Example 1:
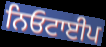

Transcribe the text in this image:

ਨਿਓਟਾਈਪ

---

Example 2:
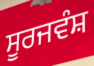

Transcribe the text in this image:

ਸੂਰਜਵੰਸ਼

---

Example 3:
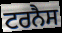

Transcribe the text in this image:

ਟਰਨੈਸ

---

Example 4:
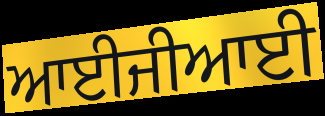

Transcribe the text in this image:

ਆਈਜੀਆਈ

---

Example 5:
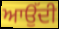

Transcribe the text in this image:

ਆਉੱਦੀ